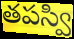
తపస్వి